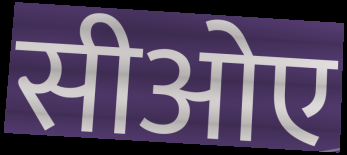
सीओए